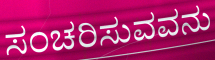
ಸಂಚರಿಸುವವನು